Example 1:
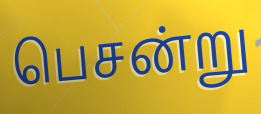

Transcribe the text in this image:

பெசன்று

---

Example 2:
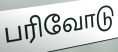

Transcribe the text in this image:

பரிவோடு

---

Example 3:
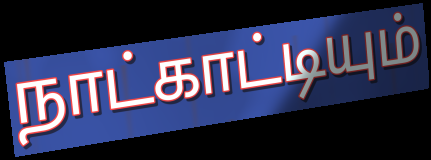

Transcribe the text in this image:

நாட்காட்டியும்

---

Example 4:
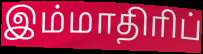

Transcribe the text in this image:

இம்மாதிரிப்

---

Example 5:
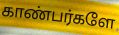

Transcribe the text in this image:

காண்பர்களே